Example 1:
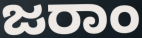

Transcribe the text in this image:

ಜರಾಂ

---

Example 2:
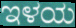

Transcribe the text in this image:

ಇಳಯ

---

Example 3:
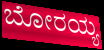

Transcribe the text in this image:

ಬೋರಯ್ಯ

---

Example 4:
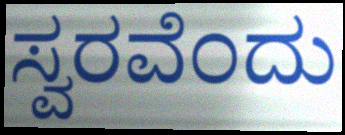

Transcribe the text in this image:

ಸ್ವರವೆಂದು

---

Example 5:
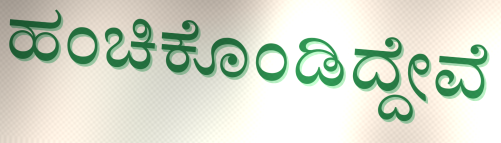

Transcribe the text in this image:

ಹಂಚಿಕೊಂಡಿದ್ದೇವೆ